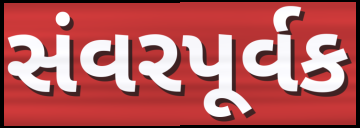
સંવરપૂર્વક